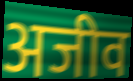
अजीव